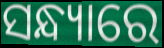
ସନ୍ଧ୍ୟାରେ